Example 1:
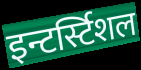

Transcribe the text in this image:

इन्टर्स्टिशल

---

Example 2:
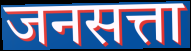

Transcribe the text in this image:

जनसत्ता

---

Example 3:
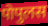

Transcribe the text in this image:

पोपुलस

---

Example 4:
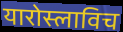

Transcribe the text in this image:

यारोस्लाविच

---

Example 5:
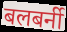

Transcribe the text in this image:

बलबर्नी